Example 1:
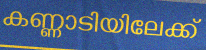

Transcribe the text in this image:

കണ്ണാടിയിലേക്ക്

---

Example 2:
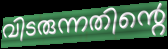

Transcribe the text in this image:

വിടരുന്നതിന്റെ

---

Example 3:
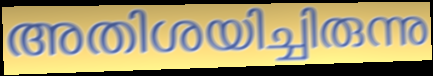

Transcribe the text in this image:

അതിശയിച്ചിരുന്നു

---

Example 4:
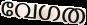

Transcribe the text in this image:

വേഗത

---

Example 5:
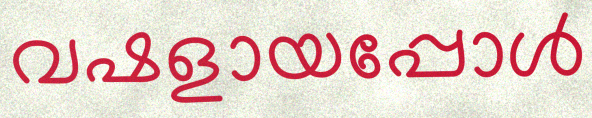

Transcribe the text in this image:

വഷളായപ്പോൾ